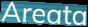
Areata